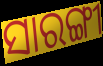
ସାରଙ୍ଗୀ